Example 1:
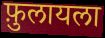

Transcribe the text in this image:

फ़ुलायला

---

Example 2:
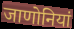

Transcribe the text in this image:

जाणोनियां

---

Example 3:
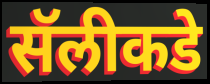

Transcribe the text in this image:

सॅलीकडे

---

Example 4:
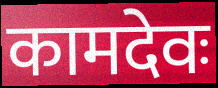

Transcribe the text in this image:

कामदेवः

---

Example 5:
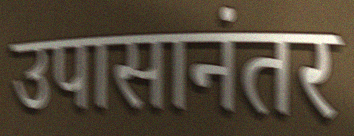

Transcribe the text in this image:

उपासानंतर